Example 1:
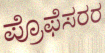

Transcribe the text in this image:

ಪ್ರೊಫೆಸರರ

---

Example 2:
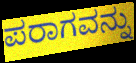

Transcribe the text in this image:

ಪರಾಗವನ್ನು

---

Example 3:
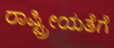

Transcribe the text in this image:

ರಾಷ್ಟ್ರೀಯತೆಗೆ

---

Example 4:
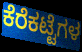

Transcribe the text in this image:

ಕೆರೆಕಟ್ಟೆಗಳ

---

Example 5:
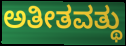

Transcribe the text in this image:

ಅತೀತವತ್ಥು